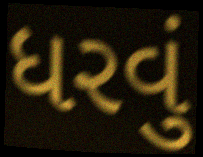
ધરવું